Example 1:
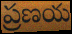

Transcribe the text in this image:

ప్రణయ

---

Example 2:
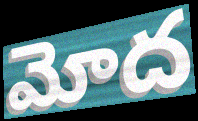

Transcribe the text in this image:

మోద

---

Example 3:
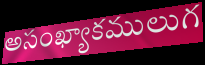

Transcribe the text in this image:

అసంఖ్యాకములుగ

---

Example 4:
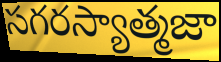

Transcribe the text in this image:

సగరస్యాత్మజా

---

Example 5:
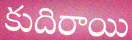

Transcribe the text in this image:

కుదిరాయి